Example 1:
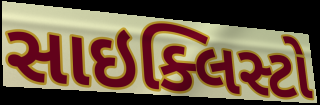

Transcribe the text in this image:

સાઇક્લિસ્ટો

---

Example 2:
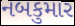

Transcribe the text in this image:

નબકુમાર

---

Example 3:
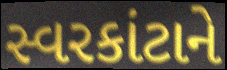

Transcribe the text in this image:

સ્વરકાંટાને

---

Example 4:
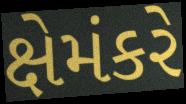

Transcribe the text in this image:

ક્ષેમંકરે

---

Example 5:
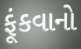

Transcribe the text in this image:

ફૂંકવાનો